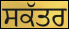
ਸਕੱਤਰ